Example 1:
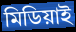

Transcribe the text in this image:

মিডিয়াই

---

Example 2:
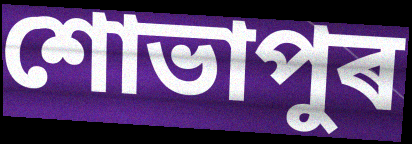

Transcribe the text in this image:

শোভাপুৰ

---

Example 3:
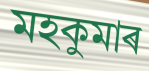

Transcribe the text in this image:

মহকুমাৰ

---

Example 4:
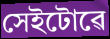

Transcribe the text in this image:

সেইটোৱে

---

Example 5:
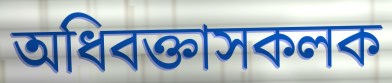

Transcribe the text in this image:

অধিবক্তাসকলক